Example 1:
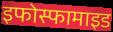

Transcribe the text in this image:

इफोस्फामाइड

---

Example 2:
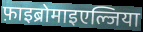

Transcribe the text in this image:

फ़ाइब्रोमाइएल्जिया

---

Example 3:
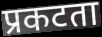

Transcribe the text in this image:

प्रकटता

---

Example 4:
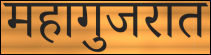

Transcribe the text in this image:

महागुजरात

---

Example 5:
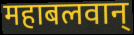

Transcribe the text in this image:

महाबलवान्